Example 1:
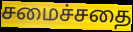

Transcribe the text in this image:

சமைச்சதை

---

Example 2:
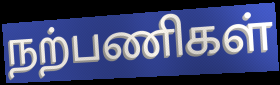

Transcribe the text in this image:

நற்பணிகள்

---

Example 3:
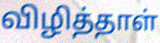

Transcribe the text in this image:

விழித்தாள்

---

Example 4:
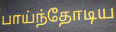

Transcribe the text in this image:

பாய்ந்தோடிய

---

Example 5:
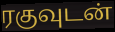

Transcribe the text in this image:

ரகுவுடன்